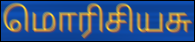
மொரிசியசு